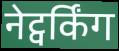
नेट्वर्किंग